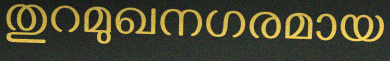
തുറമുഖനഗരമായ